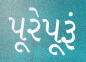
પૂરેપૂરૂં